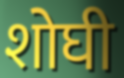
शोघी